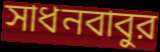
সাধনবাবুর